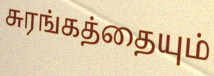
சுரங்கத்தையும்